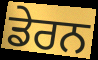
ਡੇਰਨ